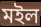
মইল